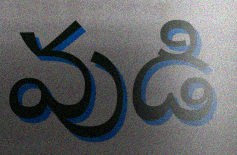
వుడి